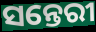
ସନ୍ତେରୀ